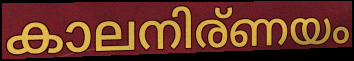
കാലനിര്ണയം